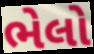
ભેલો